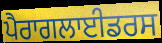
ਪੈਰਾਗਲਾਈਡਰਸ